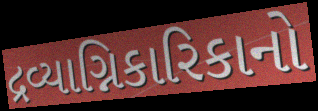
દ્રવ્યાગ્નિકારિકાનો